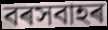
বৰসবাহৰ